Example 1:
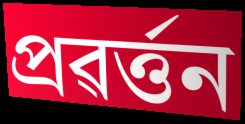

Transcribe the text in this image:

প্ৰৱৰ্ত্তন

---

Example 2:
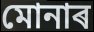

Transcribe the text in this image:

মোনাৰ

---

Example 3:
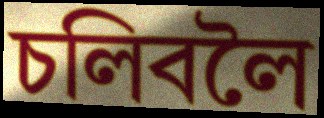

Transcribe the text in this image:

চলিবলৈ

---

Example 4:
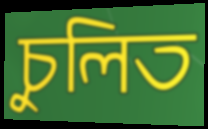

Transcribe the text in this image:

চুলিত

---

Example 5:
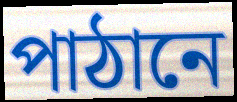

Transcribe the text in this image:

পাঠানে